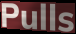
Pulls